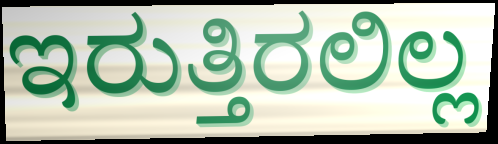
ಇರುತ್ತಿರಲಿಲ್ಲ